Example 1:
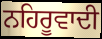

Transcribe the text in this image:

ਨਹਿਰੂਵਾਦੀ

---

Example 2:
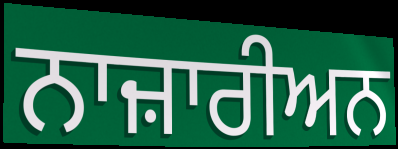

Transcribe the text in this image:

ਨਾਜ਼ਾਰੀਅਨ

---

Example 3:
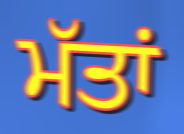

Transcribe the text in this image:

ਮੱਤਾਂ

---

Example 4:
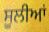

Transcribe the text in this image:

ਸੂਲੀਆਂ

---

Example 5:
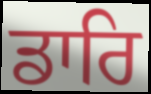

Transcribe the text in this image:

ਡਾਰਿ